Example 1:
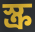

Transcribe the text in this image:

স্ক্র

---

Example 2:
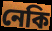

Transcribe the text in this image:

নেকি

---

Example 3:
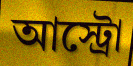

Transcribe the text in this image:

আস্ট্রো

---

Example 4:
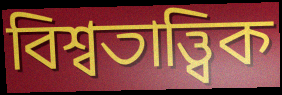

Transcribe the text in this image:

বিশ্বতাত্ত্বিক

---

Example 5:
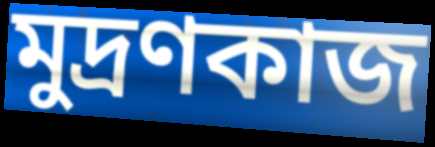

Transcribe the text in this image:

মুদ্রণকাজ